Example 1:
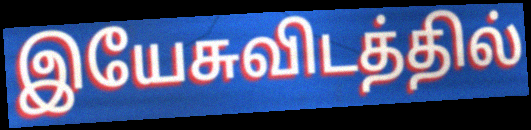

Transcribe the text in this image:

இயேசுவிடத்தில்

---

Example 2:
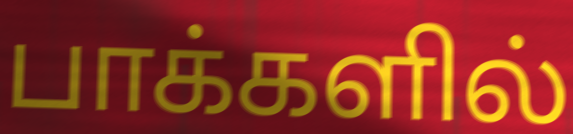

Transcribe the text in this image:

பாக்களில்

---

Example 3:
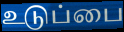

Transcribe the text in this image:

உடுப்பை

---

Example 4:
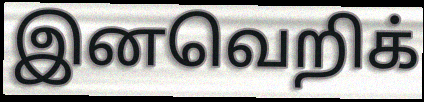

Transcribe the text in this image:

இனவெறிக்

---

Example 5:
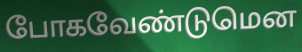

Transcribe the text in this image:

போகவேண்டுமென